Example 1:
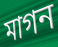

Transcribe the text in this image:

মাগন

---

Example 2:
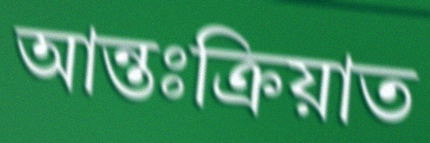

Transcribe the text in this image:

আন্তঃক্ৰিয়াত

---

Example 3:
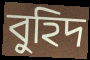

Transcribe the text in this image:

বুহিদ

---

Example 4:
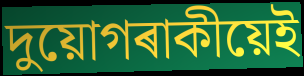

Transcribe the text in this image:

দুয়োগৰাকীয়েই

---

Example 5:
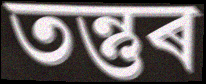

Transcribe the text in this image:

তন্তুৰ